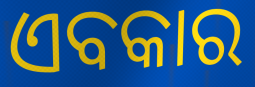
ଏବକାର